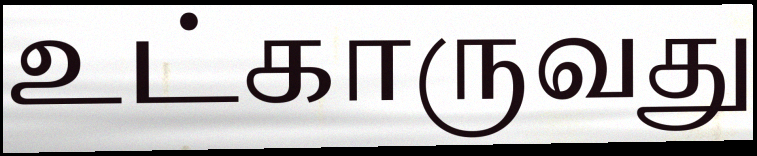
உட்காருவது